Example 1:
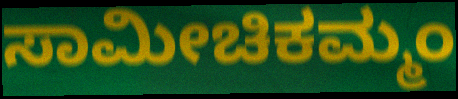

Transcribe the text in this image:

ಸಾಮೀಚಿಕಮ್ಮಂ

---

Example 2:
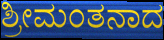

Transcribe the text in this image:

ಶ್ರೀಮಂತನಾದ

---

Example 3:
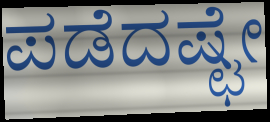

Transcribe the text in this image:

ಪಡೆದಷ್ಟೇ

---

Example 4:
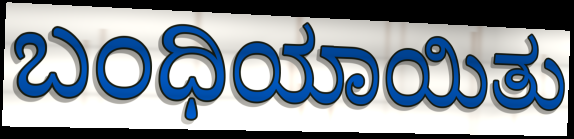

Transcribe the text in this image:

ಬಂಧಿಯಾಯಿತು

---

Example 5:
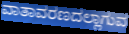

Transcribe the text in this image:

ವಾತಾವರಣದಲ್ಲಾಗುವ